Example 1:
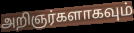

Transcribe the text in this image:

அறிஞர்களாகவும்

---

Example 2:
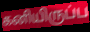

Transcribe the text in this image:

கனியிருப்ப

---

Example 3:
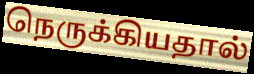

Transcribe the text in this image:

நெருக்கியதால்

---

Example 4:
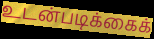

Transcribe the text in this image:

உடன்படிக்கைக்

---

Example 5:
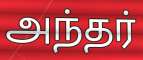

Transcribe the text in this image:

அந்தர்